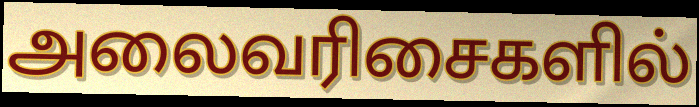
அலைவரிசைகளில்